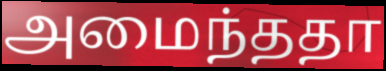
அமைந்ததா